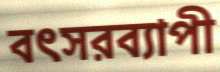
বৎসরব্যাপী